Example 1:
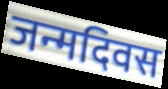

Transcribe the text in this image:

जन्मदिवस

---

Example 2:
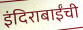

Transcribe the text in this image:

इंदिराबाईंची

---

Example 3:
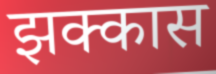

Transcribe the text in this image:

झक्कास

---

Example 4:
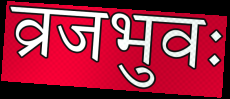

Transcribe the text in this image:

व्रजभुवः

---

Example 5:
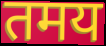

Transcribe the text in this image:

तमय